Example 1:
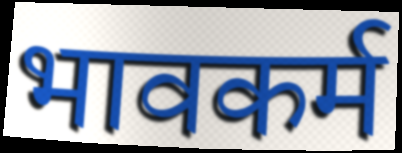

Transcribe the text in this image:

भावकर्म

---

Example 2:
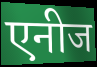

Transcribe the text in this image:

एनीज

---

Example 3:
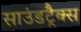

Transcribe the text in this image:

साउंडट्रैक्स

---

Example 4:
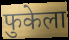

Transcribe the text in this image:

फुकेला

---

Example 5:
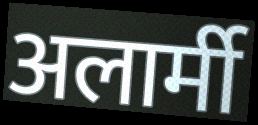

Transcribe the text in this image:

अलार्मी